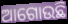
ଆଗୋଉଛି